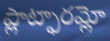
ప్లాట్ఫారమ్లో